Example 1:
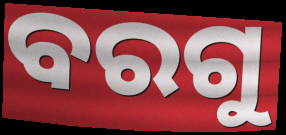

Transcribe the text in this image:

ବରଗୁ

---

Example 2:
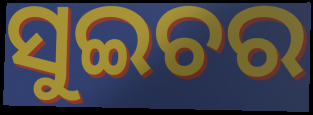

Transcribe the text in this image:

ସୁଇଚର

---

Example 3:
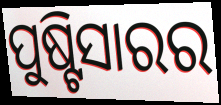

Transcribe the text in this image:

ପୁଷ୍ଟିସାରର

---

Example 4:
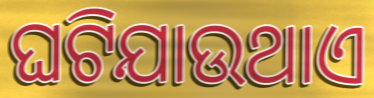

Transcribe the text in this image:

ଘଟିଯାଉଥାଏ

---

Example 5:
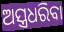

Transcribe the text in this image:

ଅସ୍ତ୍ରଧରିବା